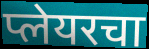
प्लेयरचा